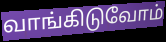
வாங்கிடுவோம்